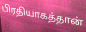
பிரதியாகத்தான்